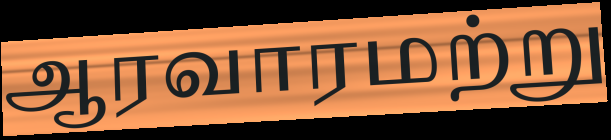
ஆரவாரமற்று